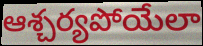
ఆశ్చర్యపోయేలా